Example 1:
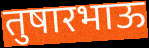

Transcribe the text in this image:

तुषारभाऊ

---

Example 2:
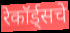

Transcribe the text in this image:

रेकॉर्ड्सचे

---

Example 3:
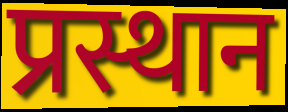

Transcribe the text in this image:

प्रस्थान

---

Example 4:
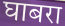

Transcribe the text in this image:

घाबरा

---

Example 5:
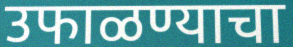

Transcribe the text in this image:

उफाळण्याचा